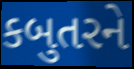
કબુતરને